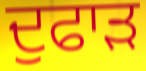
ਦੁਫਾੜ